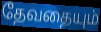
தேவதையும்